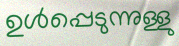
ഉൾപ്പെടുന്നുള്ളു